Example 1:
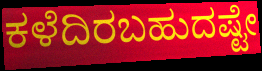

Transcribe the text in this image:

ಕಳೆದಿರಬಹುದಷ್ಟೇ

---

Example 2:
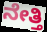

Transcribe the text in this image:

ನೇತ್ತಿ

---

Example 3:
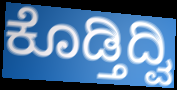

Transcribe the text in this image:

ಕೊಡ್ತಿದ್ವಿ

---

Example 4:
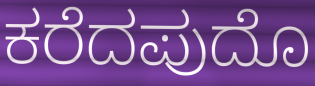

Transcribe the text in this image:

ಕರೆದಪುದೊ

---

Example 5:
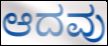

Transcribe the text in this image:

ಆದವು